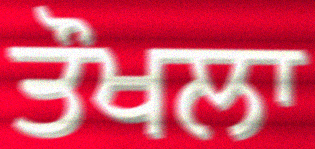
ਤੌਖਲਾ